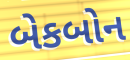
બેકબોન